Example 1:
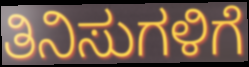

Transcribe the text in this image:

ತಿನಿಸುಗಳಿಗೆ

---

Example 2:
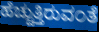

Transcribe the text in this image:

ಹೆಚ್ಚುತ್ತಿರುವಂತೆ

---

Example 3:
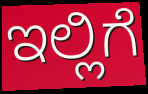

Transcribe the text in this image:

ಇಲ್ಲಿಗೆ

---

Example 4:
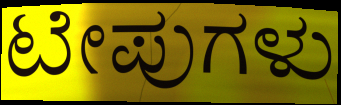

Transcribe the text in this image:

ಟೇಪುಗಳು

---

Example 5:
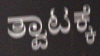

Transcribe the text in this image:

ತ್ವಾಟಕ್ಕೆ